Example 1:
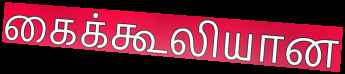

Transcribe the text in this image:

கைக்கூலியான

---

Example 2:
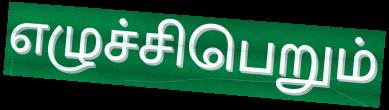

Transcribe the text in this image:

எழுச்சிபெறும்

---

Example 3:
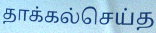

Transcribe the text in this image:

தாக்கல்செய்த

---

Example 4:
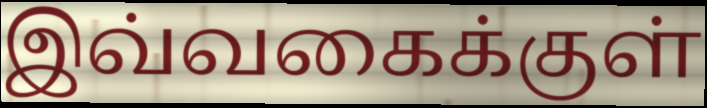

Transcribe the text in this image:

இவ்வகைக்குள்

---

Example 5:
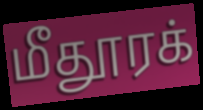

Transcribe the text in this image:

மீதூரக்